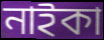
নাইকা